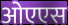
ओएएस